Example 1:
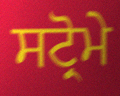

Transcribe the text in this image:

ਸਟ੍ਰੋਮੇ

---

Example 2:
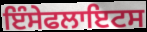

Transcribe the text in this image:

ਇੰਸੇਫਲਾਇਟਸ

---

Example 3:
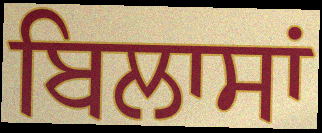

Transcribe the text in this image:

ਬਿਲਾਸਾਂ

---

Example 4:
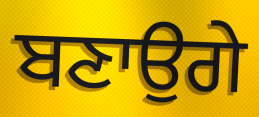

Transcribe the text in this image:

ਬਣਾਉਗੇ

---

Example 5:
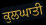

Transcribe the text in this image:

ਕੁਲਘਾਤੀ